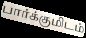
பார்க்குமிடம்